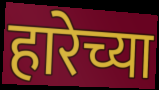
हारेच्या